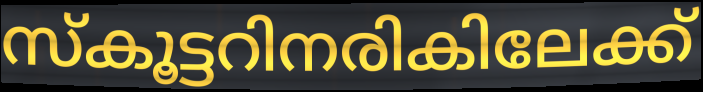
സ്കൂട്ടറിനരികിലേക്ക്